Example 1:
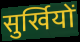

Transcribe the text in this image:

सुर्खियों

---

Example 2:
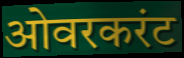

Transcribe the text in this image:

ओवरकरंट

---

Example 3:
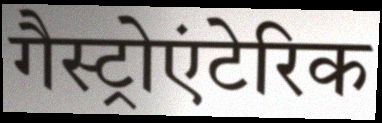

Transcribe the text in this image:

गैस्ट्रोएंटेरिक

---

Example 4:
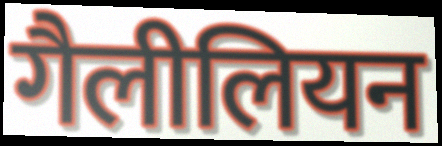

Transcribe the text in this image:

गैलीलियन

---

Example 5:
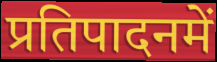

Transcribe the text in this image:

प्रतिपादनमें